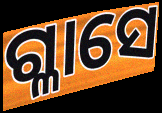
ଗ୍ଳାସେ